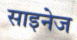
साइनेज